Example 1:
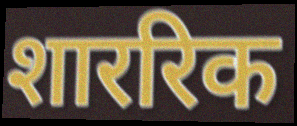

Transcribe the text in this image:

शाररिक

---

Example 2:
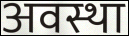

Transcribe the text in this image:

अवस्था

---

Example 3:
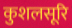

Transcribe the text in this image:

कुशलसूरि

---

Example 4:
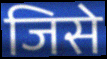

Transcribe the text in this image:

जिसे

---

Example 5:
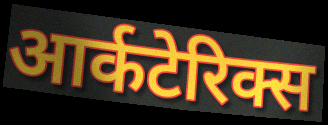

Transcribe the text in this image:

आर्कटेरिक्स